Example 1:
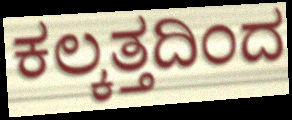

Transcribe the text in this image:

ಕಲ್ಕತ್ತದಿಂದ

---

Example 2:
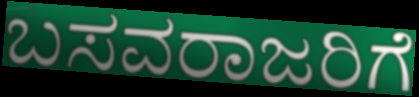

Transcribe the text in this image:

ಬಸವರಾಜರಿಗೆ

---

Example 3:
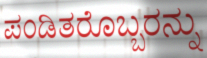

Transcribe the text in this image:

ಪಂಡಿತರೊಬ್ಬರನ್ನು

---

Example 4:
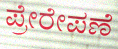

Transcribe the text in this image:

ಪ್ರೇರೇಪಣೆ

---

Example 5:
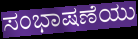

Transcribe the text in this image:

ಸಂಭಾಷಣೆಯು